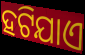
ହଟିଯାଏ